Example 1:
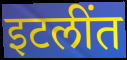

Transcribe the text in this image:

इटलींत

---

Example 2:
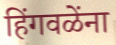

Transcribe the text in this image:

हिंगवळेंना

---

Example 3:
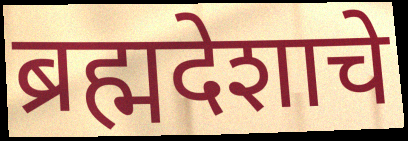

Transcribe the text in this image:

ब्रह्मदेशाचे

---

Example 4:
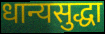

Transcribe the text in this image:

धान्यसुद्धा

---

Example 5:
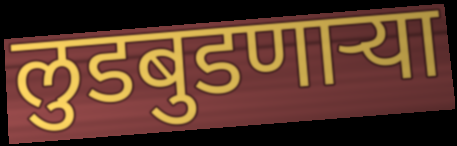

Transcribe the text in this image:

लुडबुडणाऱ्या